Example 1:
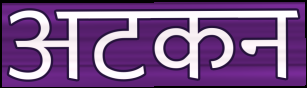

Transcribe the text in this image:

अटकन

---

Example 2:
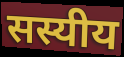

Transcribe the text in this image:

सस्यीय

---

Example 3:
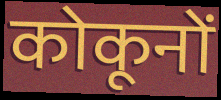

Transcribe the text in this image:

कोकूनों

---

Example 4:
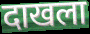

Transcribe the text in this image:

दाखला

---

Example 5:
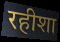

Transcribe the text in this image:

रहीशा